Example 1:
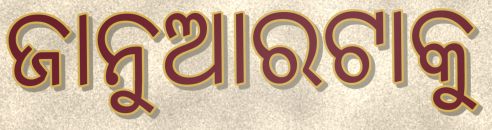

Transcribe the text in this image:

ଜାନୁଆରଟାକୁ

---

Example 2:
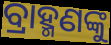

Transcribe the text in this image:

ବ୍ରାହ୍ମଣଙ୍କୁ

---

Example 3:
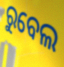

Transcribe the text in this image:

ରୁବେଲ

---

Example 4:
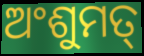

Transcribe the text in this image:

ଅଂଶୁମତ୍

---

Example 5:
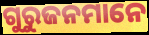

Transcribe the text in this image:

ଗୁରୁଜନମାନେ